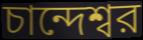
চান্দেশ্বর